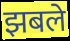
झबले